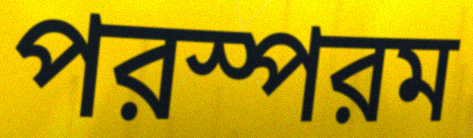
পরস্পরম